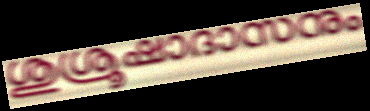
ശുശ്രൂഷാദാസനും